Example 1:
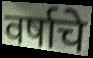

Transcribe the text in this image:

वर्षाचे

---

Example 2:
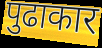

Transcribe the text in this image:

पुढाकार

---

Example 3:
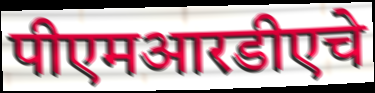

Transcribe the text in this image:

पीएमआरडीएचे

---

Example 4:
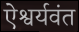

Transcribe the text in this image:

ऐश्वर्यवंत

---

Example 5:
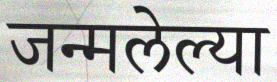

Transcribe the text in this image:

जन्मलेल्या